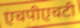
एचपीएचटी